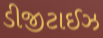
ડીજીટાઈઝ